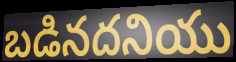
బడినదనియు